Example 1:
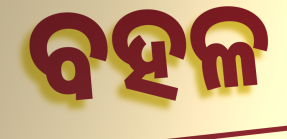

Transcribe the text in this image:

ବହଳ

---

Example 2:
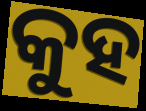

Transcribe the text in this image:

କୁହ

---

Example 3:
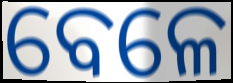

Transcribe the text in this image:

ବେଳେ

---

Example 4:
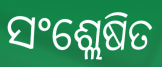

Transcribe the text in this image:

ସଂଶ୍ଲେଷିତ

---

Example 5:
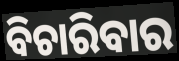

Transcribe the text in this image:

ବିଚାରିବାର